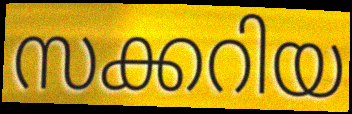
സക്കറിയ